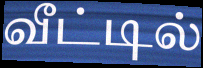
வீட்டில்